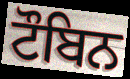
ਟੌਬਿਨ